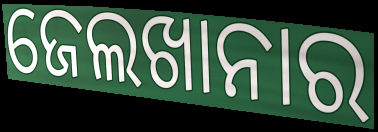
ଜେଲଖାନାର